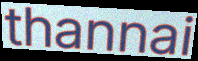
thannai